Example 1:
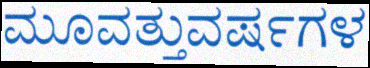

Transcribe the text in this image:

ಮೂವತ್ತುವರ್ಷಗಳ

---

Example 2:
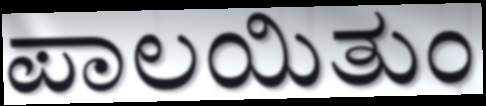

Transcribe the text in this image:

ಪಾಲಯಿತುಂ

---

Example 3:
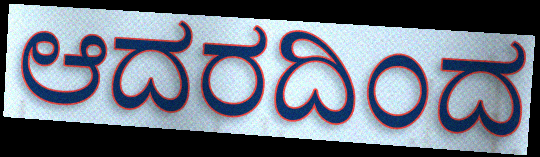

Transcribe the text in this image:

ಆದರದಿಂದ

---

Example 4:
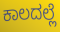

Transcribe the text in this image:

ಕಾಲದಲ್ಲೆ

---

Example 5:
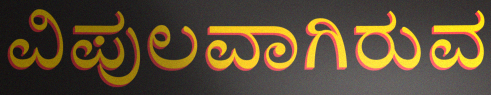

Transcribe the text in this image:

ವಿಪುಲವಾಗಿರುವ